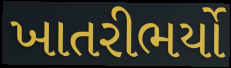
ખાતરીભર્યો